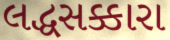
લદ્ધસક્કારા